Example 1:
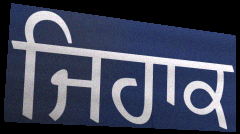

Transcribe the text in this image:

ਜਿਹਾਕ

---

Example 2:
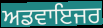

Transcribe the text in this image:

ਅਡਵਾਇਜਰ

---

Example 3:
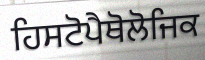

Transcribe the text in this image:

ਹਿਸਟੋਪੈਥੋਲੋਜਿਕ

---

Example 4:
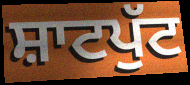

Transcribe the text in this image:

ਸ਼ਾਟਪੁੱਟ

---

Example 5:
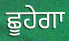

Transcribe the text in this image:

ਛੂਹੇਗਾ